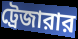
ট্রেজারার